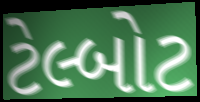
ટેલ્બોટ